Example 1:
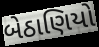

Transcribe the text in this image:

બેઠાણિયો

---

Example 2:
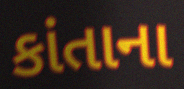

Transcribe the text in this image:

કાંતાના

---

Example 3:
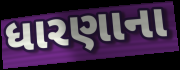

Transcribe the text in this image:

ધારણાના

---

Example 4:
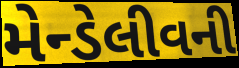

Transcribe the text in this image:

મેન્ડેલીવની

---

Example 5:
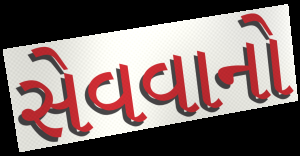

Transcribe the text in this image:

સેવવાનો